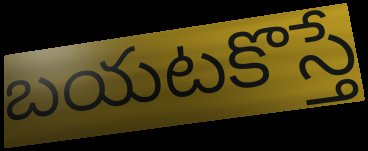
బయటకొస్తే